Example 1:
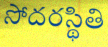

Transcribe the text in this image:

సోదరస్థితి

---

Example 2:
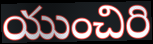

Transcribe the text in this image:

యుంచిరి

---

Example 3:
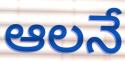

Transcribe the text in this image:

ఆలనే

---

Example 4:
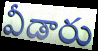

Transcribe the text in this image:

వీడారు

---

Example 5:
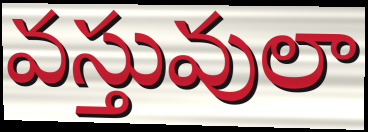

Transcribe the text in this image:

వస్తువులా